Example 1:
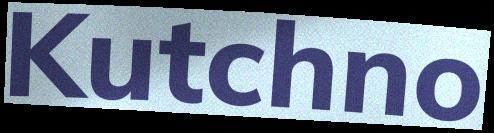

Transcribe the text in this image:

Kutchno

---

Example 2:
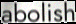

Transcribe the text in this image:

abolish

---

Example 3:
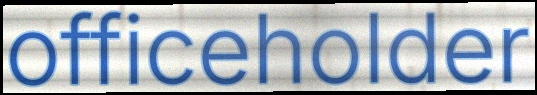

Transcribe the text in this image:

officeholder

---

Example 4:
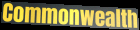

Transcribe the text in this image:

Commonwealth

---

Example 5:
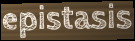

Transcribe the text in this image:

epistasis